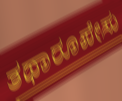
ತಥಾರೂಪೇಸು